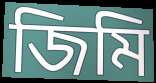
জিমি